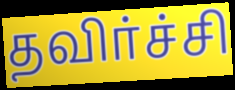
தவிர்ச்சி